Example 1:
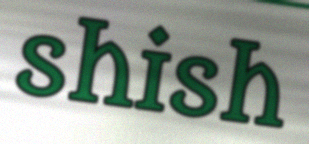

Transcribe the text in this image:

shish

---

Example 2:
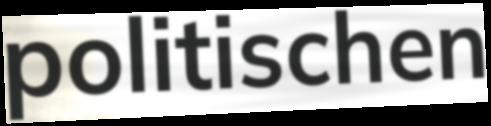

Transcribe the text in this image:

politischen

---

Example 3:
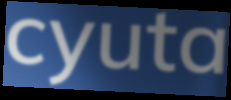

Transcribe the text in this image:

cyuta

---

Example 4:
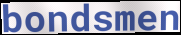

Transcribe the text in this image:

bondsmen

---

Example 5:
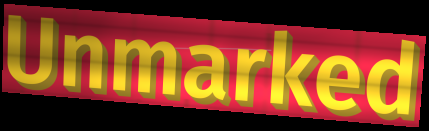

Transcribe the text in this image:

Unmarked